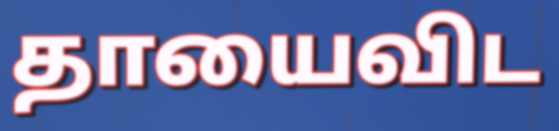
தாயைவிட